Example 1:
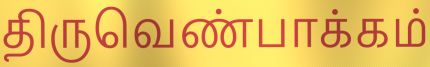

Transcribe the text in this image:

திருவெண்பாக்கம்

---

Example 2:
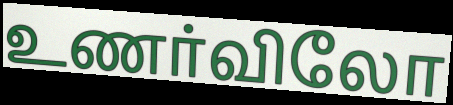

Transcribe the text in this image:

உணர்விலோ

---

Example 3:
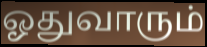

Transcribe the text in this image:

ஓதுவாரும்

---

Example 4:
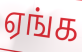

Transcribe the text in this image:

ஏங்க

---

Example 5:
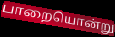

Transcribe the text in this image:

பாறையொன்று